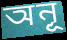
অনূ